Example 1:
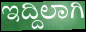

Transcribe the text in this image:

ಇದ್ದಿಲಾಗಿ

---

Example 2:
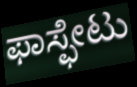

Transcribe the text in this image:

ಫಾಸ್ಫೇಟು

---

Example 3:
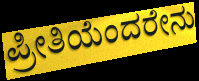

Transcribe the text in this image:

ಪ್ರೀತಿಯೆಂದರೇನು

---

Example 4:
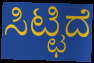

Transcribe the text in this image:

ಸಿಟ್ಟಿದೆ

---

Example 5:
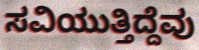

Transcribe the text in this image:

ಸವಿಯುತ್ತಿದ್ದೆವು